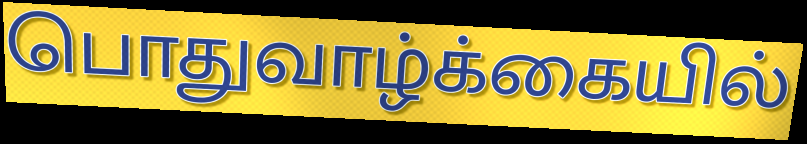
பொதுவாழ்க்கையில்